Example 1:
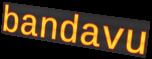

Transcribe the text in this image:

bandavu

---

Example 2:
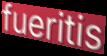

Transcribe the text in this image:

fueritis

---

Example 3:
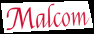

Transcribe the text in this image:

Malcom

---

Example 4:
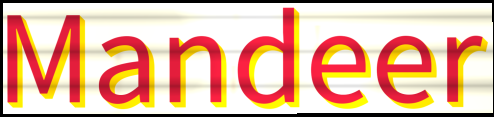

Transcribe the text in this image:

Mandeer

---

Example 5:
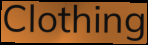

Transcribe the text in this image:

Clothing